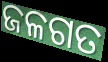
ଜଳଗତ